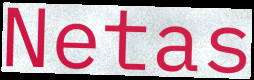
Netas